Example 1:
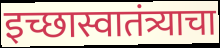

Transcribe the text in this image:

इच्छास्वातंत्र्याचा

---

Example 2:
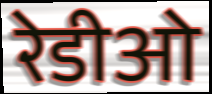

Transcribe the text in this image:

रेडीओ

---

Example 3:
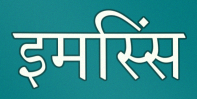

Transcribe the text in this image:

इमस्सिं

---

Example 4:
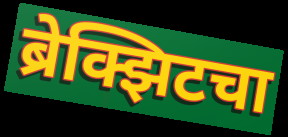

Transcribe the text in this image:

ब्रेक्झिटचा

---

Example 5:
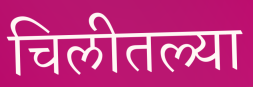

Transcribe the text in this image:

चिलीतल्या